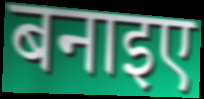
बनाइए